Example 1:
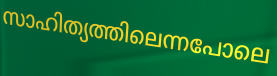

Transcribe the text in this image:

സാഹിത്യത്തിലെന്നപോലെ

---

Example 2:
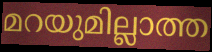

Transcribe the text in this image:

മറയുമില്ലാത്ത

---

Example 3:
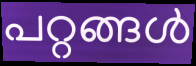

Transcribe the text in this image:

പറ്റങ്ങൾ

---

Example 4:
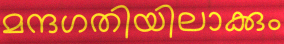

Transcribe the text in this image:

മന്ദഗതിയിലാക്കും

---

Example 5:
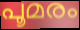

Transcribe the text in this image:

പൂമരം